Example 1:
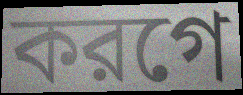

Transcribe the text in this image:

করগে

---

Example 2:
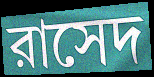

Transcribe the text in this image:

রাসেদ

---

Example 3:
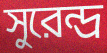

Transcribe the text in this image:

সুরেন্দ্র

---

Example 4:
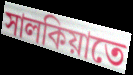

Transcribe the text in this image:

সালকিয়াতে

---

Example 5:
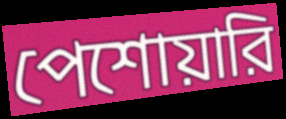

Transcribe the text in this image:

পেশোয়ারি